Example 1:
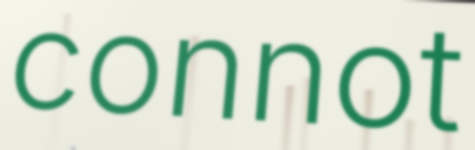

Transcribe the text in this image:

connot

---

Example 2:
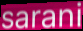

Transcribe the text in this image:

sarani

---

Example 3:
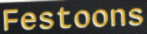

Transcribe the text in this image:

Festoons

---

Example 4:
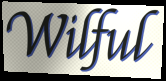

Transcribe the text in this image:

Wilful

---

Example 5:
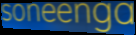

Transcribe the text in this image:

soneenga